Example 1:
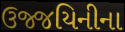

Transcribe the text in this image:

ઉજ્જયિનીના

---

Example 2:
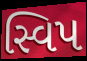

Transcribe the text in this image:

સ્વિપ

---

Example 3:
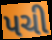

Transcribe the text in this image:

પચી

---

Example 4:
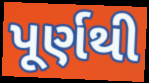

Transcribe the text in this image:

પૂર્ણથી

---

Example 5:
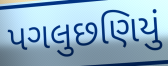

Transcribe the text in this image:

પગલુછણિયું